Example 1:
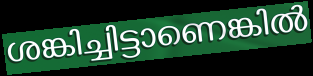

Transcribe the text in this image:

ശങ്കിച്ചിട്ടാണെങ്കിൽ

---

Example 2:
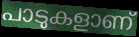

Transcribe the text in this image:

പാടുകളാണ്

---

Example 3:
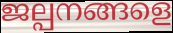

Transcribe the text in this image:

ജല്പനങ്ങളെ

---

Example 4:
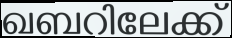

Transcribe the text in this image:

ഖബറിലേക്ക്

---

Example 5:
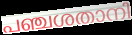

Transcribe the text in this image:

പഞ്ചശതാനി